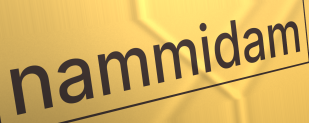
nammidam